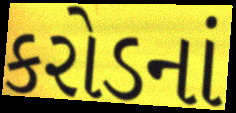
કરોડનાં